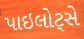
પાઇલોટ્સે